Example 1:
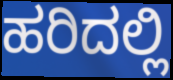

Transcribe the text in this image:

ಹರಿದಲ್ಲಿ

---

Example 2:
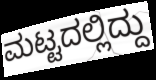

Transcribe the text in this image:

ಮಟ್ಟದಲ್ಲಿದ್ದು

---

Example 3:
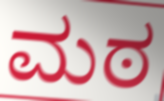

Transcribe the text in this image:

ಮಠ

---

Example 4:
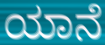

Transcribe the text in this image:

ಯಾನೆ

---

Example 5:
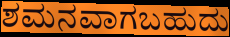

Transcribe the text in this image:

ಶಮನವಾಗಬಹುದು